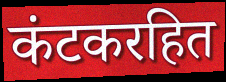
कंटकरहित